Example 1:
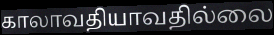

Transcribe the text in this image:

காலாவதியாவதில்லை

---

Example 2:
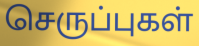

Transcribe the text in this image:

செருப்புகள்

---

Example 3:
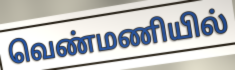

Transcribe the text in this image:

வெண்மணியில்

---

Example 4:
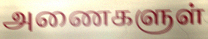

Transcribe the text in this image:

அணைகளுள்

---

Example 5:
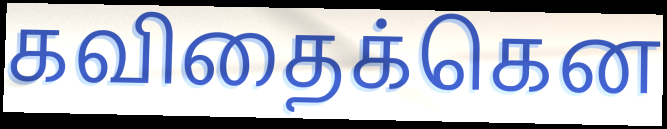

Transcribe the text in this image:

கவிதைக்கென